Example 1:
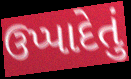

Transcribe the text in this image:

ઉપ્પાદેતું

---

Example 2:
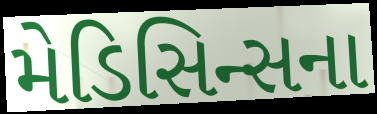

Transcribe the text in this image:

મેડિસિન્સના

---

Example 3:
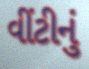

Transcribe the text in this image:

વીંટીનું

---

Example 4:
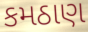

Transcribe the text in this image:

કમઠાણ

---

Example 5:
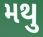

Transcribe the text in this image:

મથુ